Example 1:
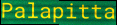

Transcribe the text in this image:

Palapitta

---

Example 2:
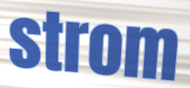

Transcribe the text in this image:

strom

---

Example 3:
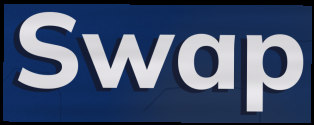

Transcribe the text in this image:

Swap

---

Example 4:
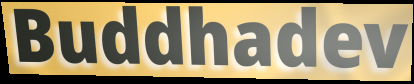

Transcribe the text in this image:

Buddhadev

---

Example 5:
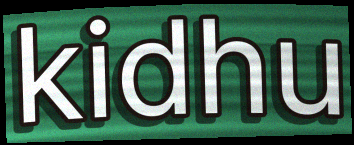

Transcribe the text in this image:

kidhu